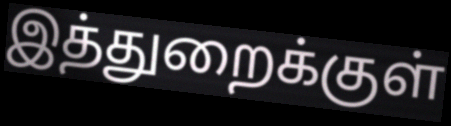
இத்துறைக்குள்